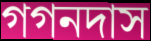
গগনদাস